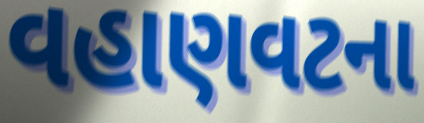
વહાણવટના